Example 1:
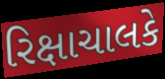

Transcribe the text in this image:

રિક્ષાચાલકે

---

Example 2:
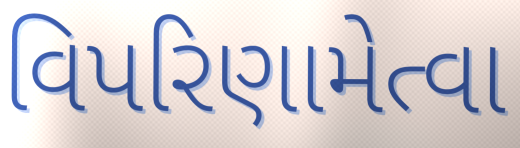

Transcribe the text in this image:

વિપરિણામેત્વા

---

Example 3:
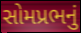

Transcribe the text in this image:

સોમપ્રભનું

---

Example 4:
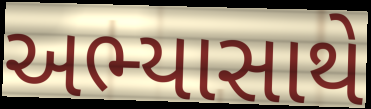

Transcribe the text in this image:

અભ્યાસાથે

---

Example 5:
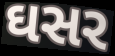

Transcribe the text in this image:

ઘસર